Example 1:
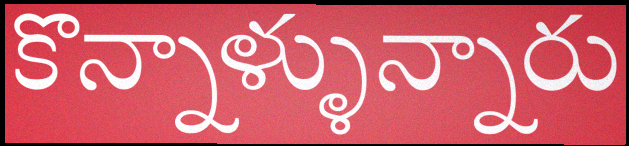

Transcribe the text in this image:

కొన్నాళ్ళున్నారు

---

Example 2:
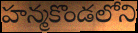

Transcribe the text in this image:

హన్మకొండలోని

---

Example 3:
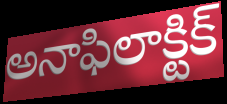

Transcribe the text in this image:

అనాఫిలాక్టిక్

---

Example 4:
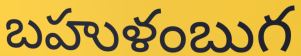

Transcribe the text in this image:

బహుళంబుగ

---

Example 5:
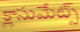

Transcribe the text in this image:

క్లాసుమేట్స్